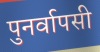
पुनर्वापसी